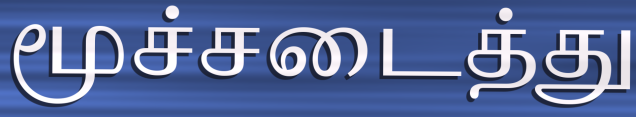
மூச்சடைத்து